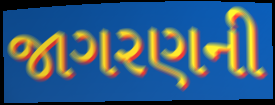
જાગરણની